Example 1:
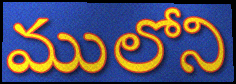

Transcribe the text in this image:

ములోని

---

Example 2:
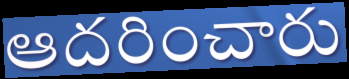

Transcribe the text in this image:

ఆదరించారు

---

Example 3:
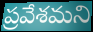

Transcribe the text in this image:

ప్రవేశమని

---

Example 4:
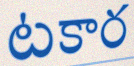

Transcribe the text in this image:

టకార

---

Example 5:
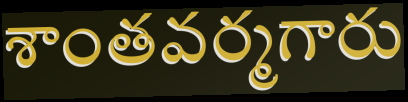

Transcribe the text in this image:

శాంతవర్మగారు